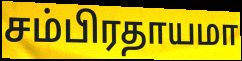
சம்பிரதாயமா